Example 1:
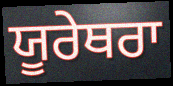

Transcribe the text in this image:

ਯੂਰੇਥਰਾ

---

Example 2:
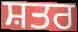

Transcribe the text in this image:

ਸ਼ਤਰ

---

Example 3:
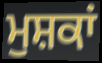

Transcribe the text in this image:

ਮੁਸ਼ਕਾਂ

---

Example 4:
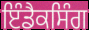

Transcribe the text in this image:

ਇੰਡੈਕਸਿੰਗ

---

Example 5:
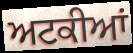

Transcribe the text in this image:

ਅਟਕੀਆਂ